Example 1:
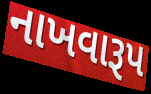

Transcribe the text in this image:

નાખવારૂપ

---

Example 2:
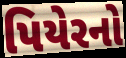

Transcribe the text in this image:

પિયેરનો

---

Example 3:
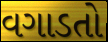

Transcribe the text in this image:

વગાડતો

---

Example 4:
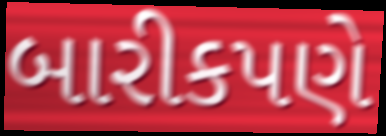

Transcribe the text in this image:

બારીકપણે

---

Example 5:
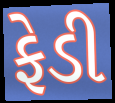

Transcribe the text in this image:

ફેડી